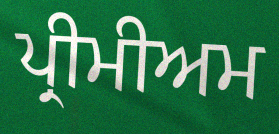
ਪ੍ਰੀਮੀਅਮ